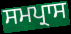
ਸਮਪ੍ਰਾਸ